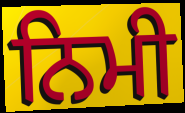
ਨਿਮੀ